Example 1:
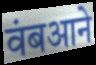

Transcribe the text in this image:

वंबआने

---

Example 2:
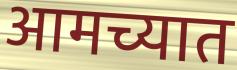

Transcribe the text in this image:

आमच्यात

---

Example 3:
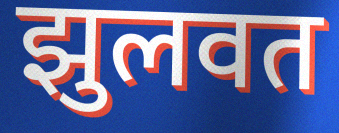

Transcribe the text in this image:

झुलवत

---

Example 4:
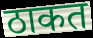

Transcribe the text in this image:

ठाकत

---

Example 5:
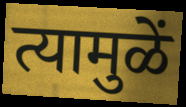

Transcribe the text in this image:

त्यामुळें